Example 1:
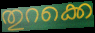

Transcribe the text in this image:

തുറക്കെ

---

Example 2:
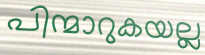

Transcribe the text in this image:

പിന്മാറുകയല്ല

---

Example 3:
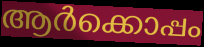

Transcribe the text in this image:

ആർക്കൊപ്പം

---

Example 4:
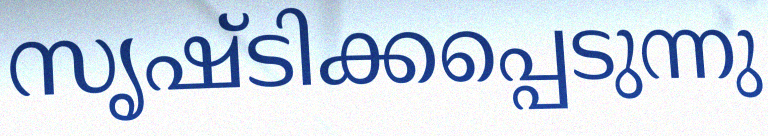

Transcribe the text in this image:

സൃഷ്ടിക്കപ്പെടുന്നു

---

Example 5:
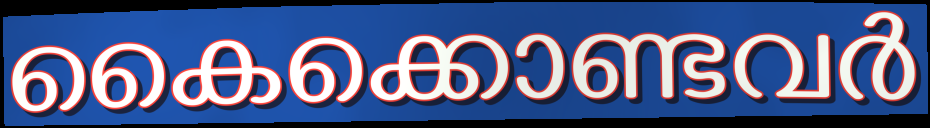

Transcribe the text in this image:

കൈക്കൊണ്ടവർ